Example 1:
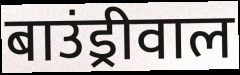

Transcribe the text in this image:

बाउंड्रीवाल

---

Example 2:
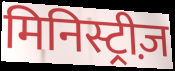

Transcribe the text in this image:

मिनिस्ट्रीज़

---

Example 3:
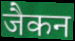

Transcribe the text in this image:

जैकन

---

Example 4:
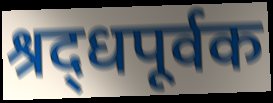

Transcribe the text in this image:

श्रद्धपूर्वक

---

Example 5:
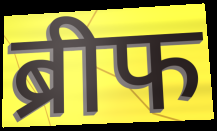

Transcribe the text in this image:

ब्रीफ